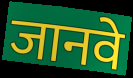
जानवे